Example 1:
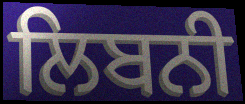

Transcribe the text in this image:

ਲਿਬਨੀ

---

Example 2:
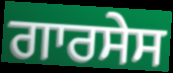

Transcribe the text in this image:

ਗਾਰਸੇਸ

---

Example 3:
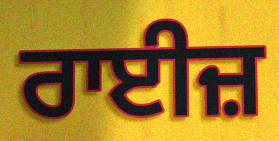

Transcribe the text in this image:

ਰਾਈਜ਼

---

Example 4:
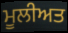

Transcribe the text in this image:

ਮੂਲੀਅਤ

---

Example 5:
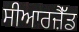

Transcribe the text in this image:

ਸੀਆਰਜ਼ੈੱਡ